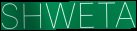
SHWETA